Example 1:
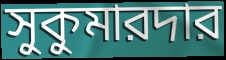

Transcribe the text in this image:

সুকুমারদার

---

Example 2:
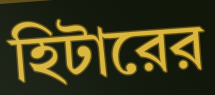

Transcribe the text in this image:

হিটারের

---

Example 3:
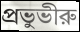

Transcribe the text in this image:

প্রভুভীরু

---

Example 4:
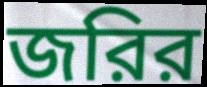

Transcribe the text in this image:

জরির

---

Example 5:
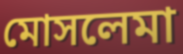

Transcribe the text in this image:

মোসলেমা